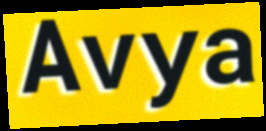
Avya